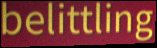
belittling